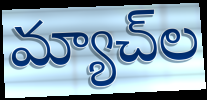
మ్యాచ్‌ల